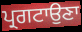
ਪ੍ਰਗਟਾਉਣਾ